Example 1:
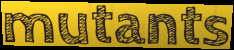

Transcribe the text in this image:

mutants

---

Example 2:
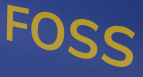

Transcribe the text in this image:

FOSS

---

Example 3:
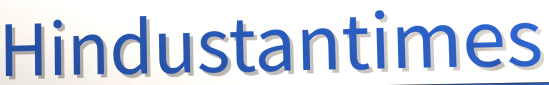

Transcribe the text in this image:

Hindustantimes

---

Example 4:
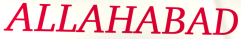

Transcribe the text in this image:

ALLAHABAD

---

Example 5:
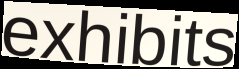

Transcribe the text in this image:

exhibits